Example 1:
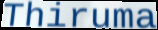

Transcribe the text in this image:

Thiruma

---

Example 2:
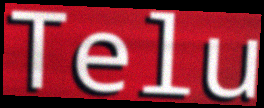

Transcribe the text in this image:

Telu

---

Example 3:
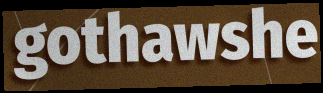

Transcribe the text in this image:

gothawshe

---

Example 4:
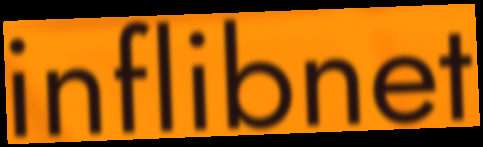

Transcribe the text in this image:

inflibnet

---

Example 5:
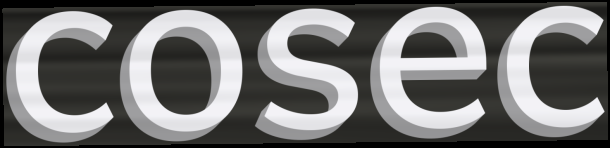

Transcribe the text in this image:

cosec